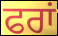
ਫਰਾਂ